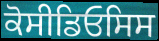
ਕੋਸੀਡਿਓਸਿਸ